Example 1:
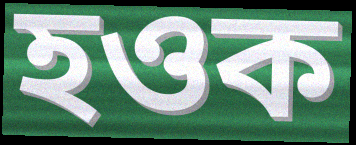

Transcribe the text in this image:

হওক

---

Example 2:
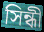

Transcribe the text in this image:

সিন্ধী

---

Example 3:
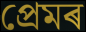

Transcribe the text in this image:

প্ৰেমৰ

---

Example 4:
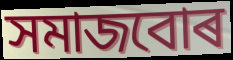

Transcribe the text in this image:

সমাজবোৰ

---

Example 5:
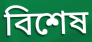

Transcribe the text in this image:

বিশেষ